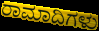
ರಾಮಾದಿಗಳು